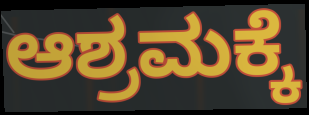
ಆಶ್ರಮಕ್ಕೆ